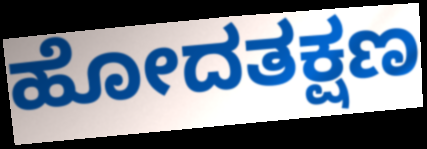
ಹೋದತಕ್ಷಣ